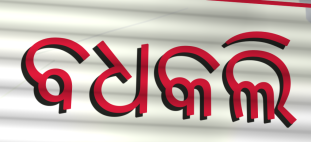
ବଧକଲି